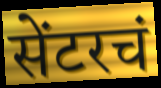
सेंटरचं